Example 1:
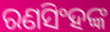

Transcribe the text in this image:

ରଣସିଂହଙ୍କ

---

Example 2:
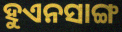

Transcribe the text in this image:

ହୁଏନସାଙ୍ଗ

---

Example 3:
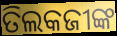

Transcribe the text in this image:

ତିଲକଜୀଙ୍କ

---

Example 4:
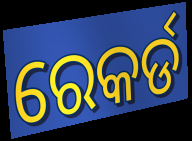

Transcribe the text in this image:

ରେକର୍ଡ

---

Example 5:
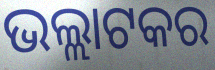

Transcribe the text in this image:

ଭଲ୍ଲାଟକର